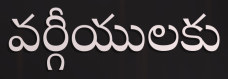
వర్గీయులకు